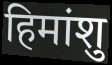
हिमांशु